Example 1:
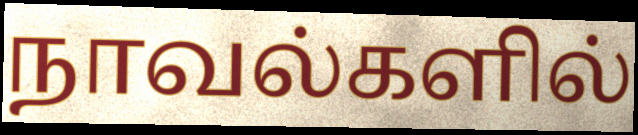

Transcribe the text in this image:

நாவல்களில்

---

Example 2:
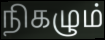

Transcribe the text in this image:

நிகழும்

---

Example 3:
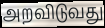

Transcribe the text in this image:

அறவிடுவது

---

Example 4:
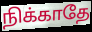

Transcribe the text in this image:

நிக்காதே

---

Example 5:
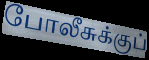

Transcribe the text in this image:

போலீசுக்குப்